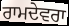
ਰਾਮਦੇਵਰਾ